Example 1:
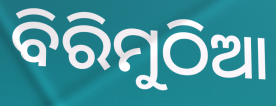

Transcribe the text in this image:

ବିରିମୁଠିଆ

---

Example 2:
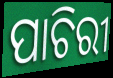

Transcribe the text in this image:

ପାଚିରୀ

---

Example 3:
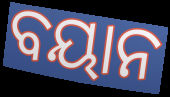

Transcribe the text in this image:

ବୟାନ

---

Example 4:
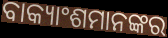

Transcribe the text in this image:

ବାକ୍ୟାଂଶମାନଙ୍କର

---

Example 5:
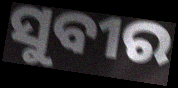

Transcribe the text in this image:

ସୁବୀର